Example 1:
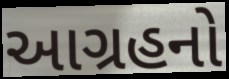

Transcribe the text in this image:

આગ્રહનો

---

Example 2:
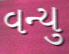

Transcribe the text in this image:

વન્યુ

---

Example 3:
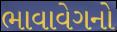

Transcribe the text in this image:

ભાવાવેગનો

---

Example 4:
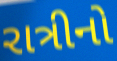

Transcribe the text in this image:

રાત્રીનો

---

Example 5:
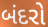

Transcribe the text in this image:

બંદરો